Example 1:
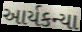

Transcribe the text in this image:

આર્યકન્યા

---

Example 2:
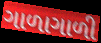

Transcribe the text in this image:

ગાળાગાળી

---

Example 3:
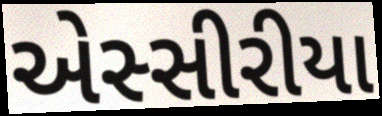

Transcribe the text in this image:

એસ્સીરીયા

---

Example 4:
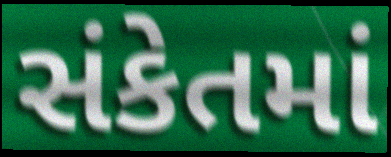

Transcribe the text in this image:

સંકેતમાં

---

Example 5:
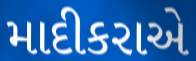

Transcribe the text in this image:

માદીકરાએ